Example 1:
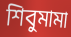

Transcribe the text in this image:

শিবুমামা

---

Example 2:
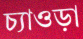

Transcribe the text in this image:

চ্যাওড়া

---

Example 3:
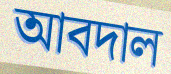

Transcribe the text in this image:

আবদাল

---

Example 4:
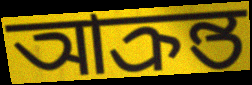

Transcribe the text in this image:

আক্রন্ত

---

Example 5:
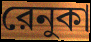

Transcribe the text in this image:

রেনুকা